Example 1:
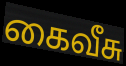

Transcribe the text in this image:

கைவீசு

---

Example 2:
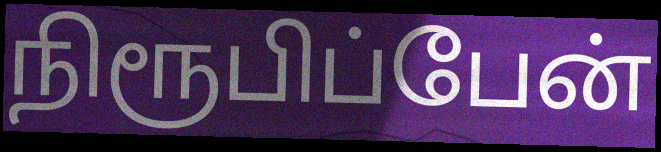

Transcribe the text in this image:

நிரூபிப்பேன்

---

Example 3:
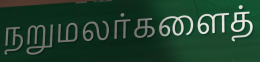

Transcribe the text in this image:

நறுமலர்களைத்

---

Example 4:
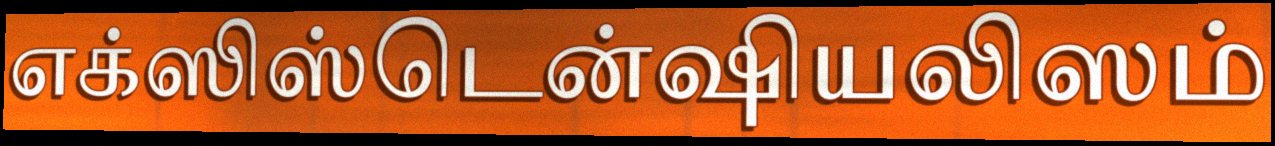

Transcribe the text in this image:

எக்ஸிஸ்டென்ஷியலிஸம்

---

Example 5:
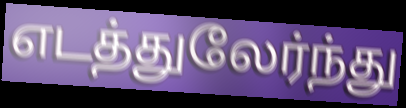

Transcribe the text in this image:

எடத்துலேர்ந்து